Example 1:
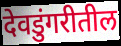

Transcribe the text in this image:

देवडुंगरीतील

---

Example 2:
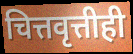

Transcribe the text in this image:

चित्तवृत्तीही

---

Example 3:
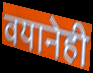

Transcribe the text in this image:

वयानेही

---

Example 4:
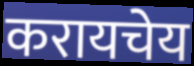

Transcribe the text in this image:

करायचेय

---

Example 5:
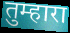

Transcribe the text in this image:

तुम्हारा